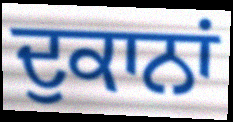
ਦੁਕਾਨਾਂ